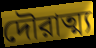
দৌরাত্ম্য